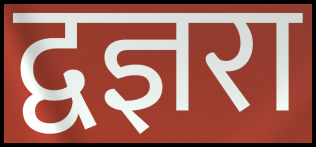
द्वज्ञरा